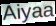
Aiyaa